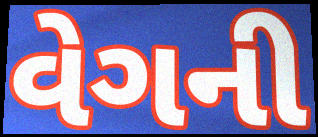
વેગની